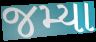
જમ્યા